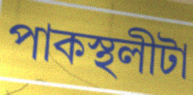
পাকস্থলীটা